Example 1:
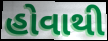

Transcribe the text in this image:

હોવાથી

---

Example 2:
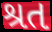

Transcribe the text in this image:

શ્રત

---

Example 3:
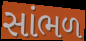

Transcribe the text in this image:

સાંભળ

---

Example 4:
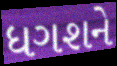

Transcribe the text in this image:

ધગશને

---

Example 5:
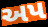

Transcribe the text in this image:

અપ